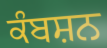
ਕੰਬਸ਼ਨ